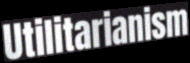
Utilitarianism